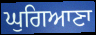
ਘੁਗਿਆਣਾ